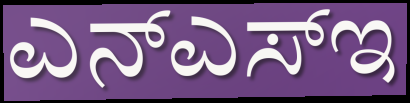
ಎನ್ಎಸ್ಇ